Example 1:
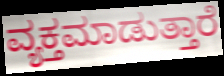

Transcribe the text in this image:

ವ್ಯಕ್ತಮಾಡುತ್ತಾರೆ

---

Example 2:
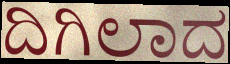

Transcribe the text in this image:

ದಿಗಿಲಾದ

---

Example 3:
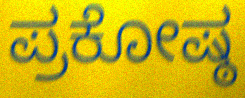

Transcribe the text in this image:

ಪ್ರಕೋಷ್ಠ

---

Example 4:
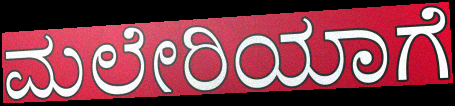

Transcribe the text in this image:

ಮಲೇರಿಯಾಗೆ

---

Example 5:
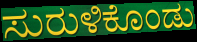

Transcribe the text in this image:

ಸುರುಳಿಕೊಂಡು